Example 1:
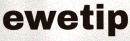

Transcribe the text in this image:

ewetip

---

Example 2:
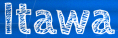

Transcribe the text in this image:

Itawa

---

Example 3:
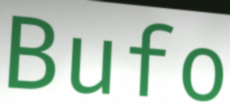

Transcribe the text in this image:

Bufo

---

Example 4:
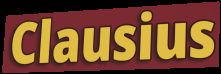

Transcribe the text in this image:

Clausius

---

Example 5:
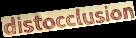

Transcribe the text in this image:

distocclusion